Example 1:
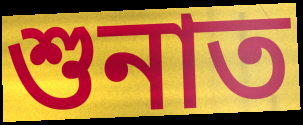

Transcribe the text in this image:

শুনাত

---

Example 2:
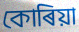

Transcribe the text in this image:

কোৰিয়া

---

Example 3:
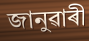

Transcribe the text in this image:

জানুৱাৰী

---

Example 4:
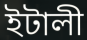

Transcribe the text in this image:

ইটালী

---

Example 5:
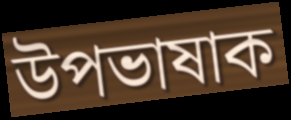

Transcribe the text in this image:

উপভাষাক